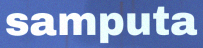
samputa